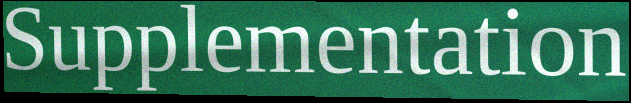
Supplementation